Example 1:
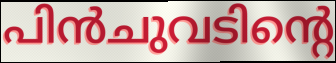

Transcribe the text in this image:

പിൻചുവടിന്റെ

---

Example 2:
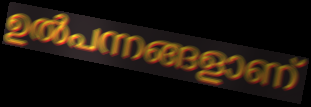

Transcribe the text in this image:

ഉൽപന്നങ്ങളാണ്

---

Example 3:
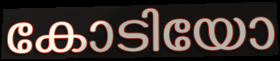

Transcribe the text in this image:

കോടിയോ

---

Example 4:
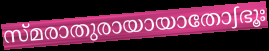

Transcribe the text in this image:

സ്മരാതുരായായാതോഽഭൂഃ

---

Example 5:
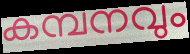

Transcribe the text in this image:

കമ്പനവും